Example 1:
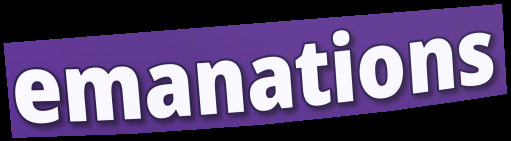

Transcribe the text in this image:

emanations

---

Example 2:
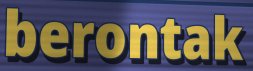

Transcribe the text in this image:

berontak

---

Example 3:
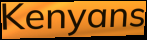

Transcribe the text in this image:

Kenyans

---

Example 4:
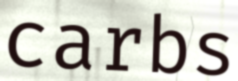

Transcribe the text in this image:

carbs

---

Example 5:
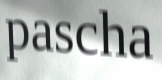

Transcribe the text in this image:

pascha